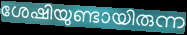
ശേഷിയുണ്ടായിരുന്ന